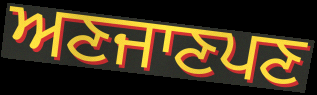
ਅਣਜਾਣਪਣ